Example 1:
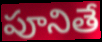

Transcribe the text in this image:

పూనితే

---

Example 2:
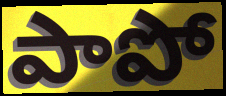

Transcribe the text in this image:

పాపో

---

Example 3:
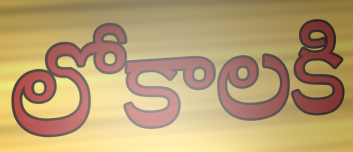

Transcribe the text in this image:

లోకాలకి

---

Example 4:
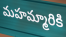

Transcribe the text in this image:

మహమ్మారికి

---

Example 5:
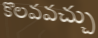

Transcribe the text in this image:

కొలవవచ్చు